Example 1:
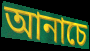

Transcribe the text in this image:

আনাচে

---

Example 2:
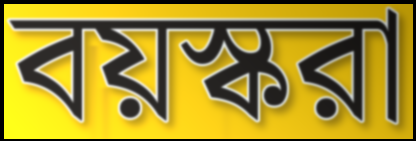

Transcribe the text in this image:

বয়স্করা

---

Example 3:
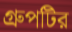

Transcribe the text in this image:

গ্রুপটির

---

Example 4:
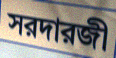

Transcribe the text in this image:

সরদারজী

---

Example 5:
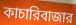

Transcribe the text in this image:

কাচারিবাজার